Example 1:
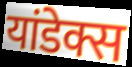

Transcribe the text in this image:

यांडेक्स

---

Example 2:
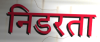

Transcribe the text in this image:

निडरता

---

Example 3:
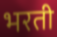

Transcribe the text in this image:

भरती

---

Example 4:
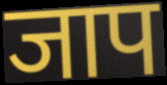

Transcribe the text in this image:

जाप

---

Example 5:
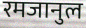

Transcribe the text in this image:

रमजानुल